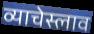
व्याचेस्लाव